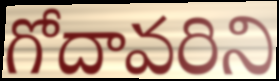
గోదావరిని